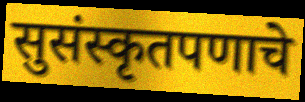
सुसंस्कृतपणाचे